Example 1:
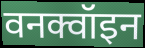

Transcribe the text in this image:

वनक्वॉइन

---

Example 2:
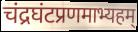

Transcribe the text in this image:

चंद्रघंटप्रणमाभ्यहम्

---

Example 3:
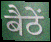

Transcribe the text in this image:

बैठें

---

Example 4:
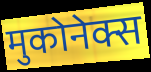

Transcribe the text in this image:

मुकोनेक्स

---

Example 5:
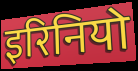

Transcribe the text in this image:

इरिनियो